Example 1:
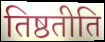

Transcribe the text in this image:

तिष्ठतीति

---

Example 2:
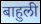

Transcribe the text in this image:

बाहुली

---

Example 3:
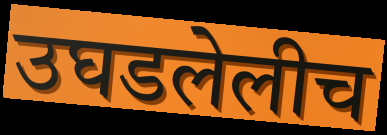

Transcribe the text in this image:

उघडलेलीच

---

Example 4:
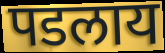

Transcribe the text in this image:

पडलाय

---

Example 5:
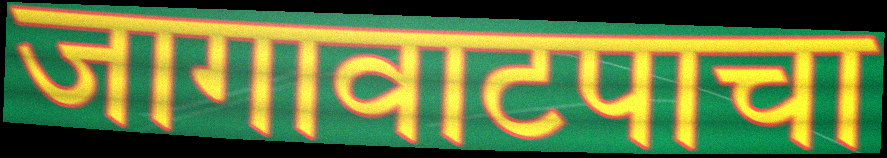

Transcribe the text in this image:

जागावाटपाचा